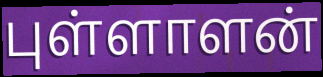
புள்ளாளன்